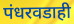
पंधरवडाही